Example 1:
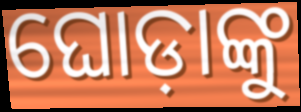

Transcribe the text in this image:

ଘୋଡ଼ାଙ୍କୁ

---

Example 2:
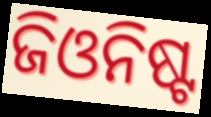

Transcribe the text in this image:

ଜିଓନିଷ୍ଟ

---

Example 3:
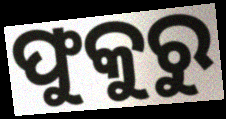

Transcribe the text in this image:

ଫୁକୁରୁ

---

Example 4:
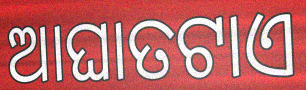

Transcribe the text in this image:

ଆଘାତଟାଏ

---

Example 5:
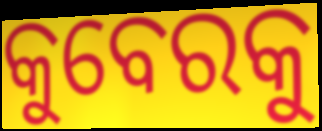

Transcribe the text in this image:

କୁବେରକୁ